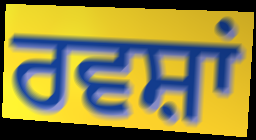
ਰਵਸ਼ਾਂ